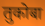
तुकोबा